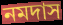
নমদাস